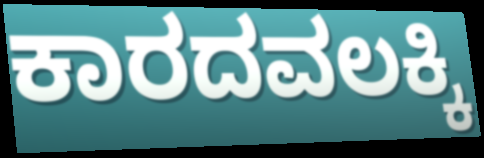
ಕಾರದವಲಕ್ಕಿ